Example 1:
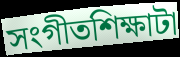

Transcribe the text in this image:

সংগীতশিক্ষাটা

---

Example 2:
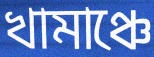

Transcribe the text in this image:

খামাঞ্চে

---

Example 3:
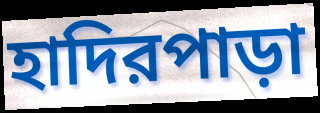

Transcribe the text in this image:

হাদিরপাড়া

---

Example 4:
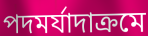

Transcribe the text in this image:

পদমর্যাদাক্রমে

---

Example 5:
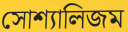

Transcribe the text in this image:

সোশ্যালিজম